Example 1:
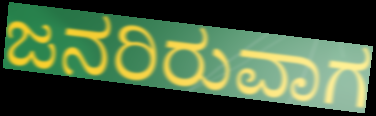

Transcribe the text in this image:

ಜನರಿರುವಾಗ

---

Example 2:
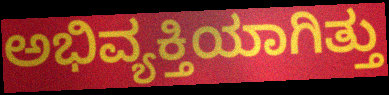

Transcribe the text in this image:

ಅಭಿವ್ಯಕ್ತಿಯಾಗಿತ್ತು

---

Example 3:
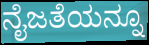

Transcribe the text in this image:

ನೈಜತೆಯನ್ನೂ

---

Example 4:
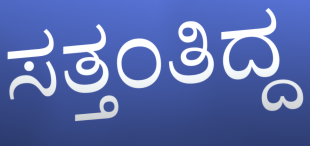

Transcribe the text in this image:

ಸತ್ತಂತಿದ್ದ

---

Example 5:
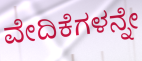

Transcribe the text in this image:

ವೇದಿಕೆಗಳನ್ನೇ